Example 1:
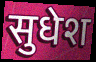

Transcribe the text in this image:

सुधेश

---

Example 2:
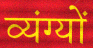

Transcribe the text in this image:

व्यंग्यों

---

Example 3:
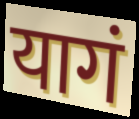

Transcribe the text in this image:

यागं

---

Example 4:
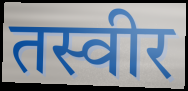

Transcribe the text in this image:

तस्‍वीर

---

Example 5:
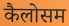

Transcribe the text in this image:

कैलोसम